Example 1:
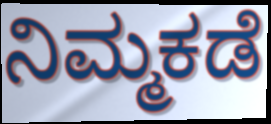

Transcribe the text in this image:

ನಿಮ್ಮಕಡೆ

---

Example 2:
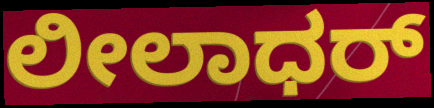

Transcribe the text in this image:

ಲೀಲಾಧರ್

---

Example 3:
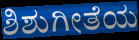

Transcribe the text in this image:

ಶಿಶುಗೀತೆಯ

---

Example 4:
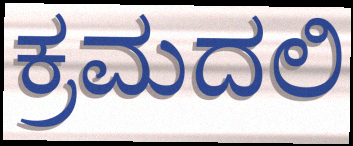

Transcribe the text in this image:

ಕ್ರಮದಲಿ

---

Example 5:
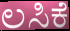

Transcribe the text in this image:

ಲಸಿಕೆ